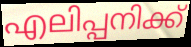
എലിപ്പനിക്ക്